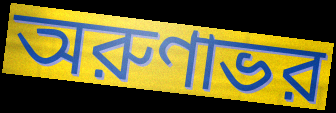
অরুণাভর